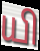
யி